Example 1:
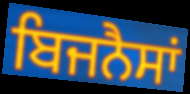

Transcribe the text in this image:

ਬਿਜਨੈਸਾਂ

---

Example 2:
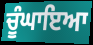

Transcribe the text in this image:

ਚੂੰਘਾਇਆ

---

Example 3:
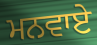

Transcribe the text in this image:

ਮਨਵਾਏ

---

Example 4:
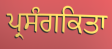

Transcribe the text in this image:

ਪ੍ਰਸੰਗਕਿਤਾ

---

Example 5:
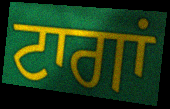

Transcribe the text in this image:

ਟਾਗਾਂ